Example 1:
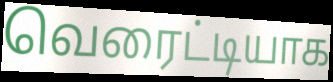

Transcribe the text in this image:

வெரைட்டியாக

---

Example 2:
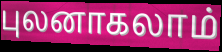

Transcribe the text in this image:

புலனாகலாம்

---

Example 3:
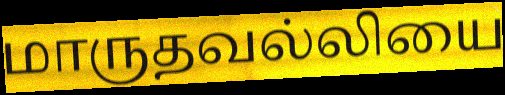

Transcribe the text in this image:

மாருதவல்லியை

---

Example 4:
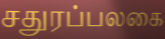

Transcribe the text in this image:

சதுரப்பலகை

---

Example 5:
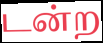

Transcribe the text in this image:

டன்ற